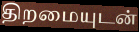
திறமையுடன்